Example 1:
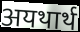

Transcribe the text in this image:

अयथार्थ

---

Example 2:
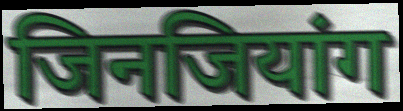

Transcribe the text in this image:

जिनजियांग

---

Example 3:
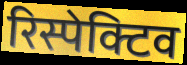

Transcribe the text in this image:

रिस्पेक्टिव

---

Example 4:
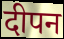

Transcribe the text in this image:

दीपन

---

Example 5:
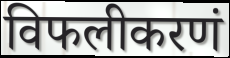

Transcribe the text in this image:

विफलीकरणं